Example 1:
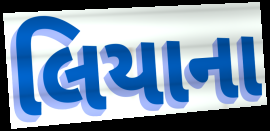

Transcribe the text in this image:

લિયાના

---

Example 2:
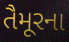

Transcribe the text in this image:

તૈમૂરના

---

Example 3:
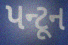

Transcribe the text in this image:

પન્ટૂન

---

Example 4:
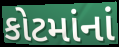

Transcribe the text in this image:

કોટમાંનાં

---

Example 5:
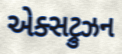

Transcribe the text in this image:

એક્સટ્રુઝન